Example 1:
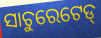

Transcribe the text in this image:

ସାଚୁରେଟେଡ୍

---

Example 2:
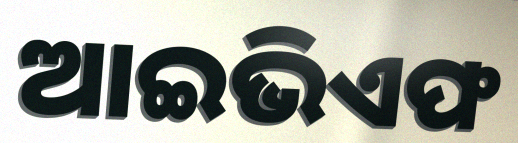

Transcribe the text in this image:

ଆଇଭିଏଫ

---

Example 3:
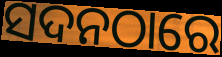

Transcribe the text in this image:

ସଦନଠାରେ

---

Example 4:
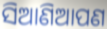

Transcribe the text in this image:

ସିଆଣିଆପଣ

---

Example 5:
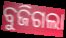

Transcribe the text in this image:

ବୁଜିଗଲା